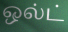
ஒல்ட்